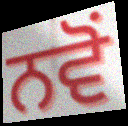
ਨਵੋਂ